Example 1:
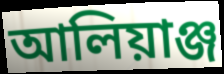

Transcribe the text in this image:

আলিয়াঞ্জ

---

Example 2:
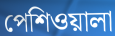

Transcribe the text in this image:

পেশিওয়ালা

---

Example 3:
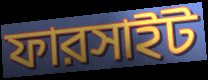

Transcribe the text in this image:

ফারসাইট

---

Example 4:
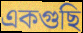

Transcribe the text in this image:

একগুছি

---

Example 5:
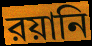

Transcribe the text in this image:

রয়ানি